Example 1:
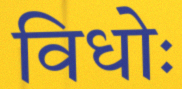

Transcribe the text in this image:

विधोः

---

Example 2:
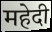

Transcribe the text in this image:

महेदी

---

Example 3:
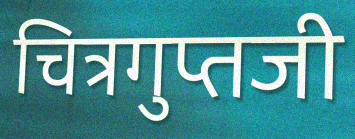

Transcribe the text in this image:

चित्रगुप्तजी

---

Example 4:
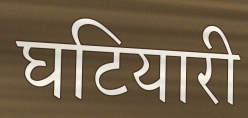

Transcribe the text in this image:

घटियारी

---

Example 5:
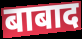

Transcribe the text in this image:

बाबाद